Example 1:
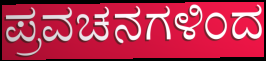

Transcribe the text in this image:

ಪ್ರವಚನಗಳಿಂದ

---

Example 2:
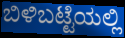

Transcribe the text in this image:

ಬಿಳಿಬಟ್ಟೆಯಲ್ಲಿ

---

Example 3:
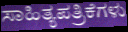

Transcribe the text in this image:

ಸಾಹಿತ್ಯಪತ್ರಿಕೆಗಳು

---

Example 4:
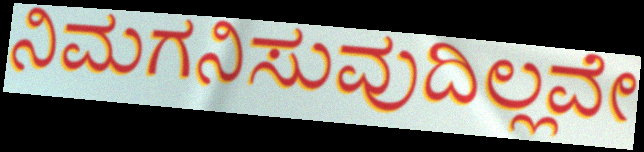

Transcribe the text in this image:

ನಿಮಗನಿಸುವುದಿಲ್ಲವೇ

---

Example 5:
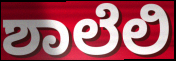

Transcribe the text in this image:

ಶಾಲೆಲಿ